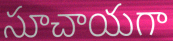
సూచాయగా